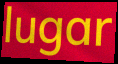
lugar